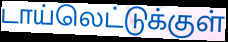
டாய்லெட்டுக்குள்